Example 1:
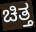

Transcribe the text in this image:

ಚಿತ್ತ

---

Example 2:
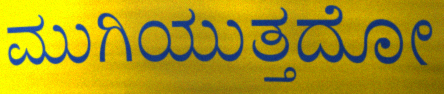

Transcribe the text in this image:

ಮುಗಿಯುತ್ತದೋ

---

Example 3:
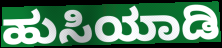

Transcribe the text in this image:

ಹುಸಿಯಾಡಿ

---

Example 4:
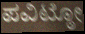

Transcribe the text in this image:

ಪವಿಟ್ಠೋ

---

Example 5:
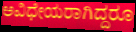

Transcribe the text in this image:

ಅವಿಧೇಯರಾಗಿದ್ದರೂ